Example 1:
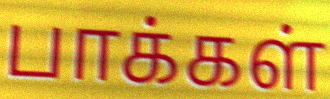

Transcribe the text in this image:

பாக்கள்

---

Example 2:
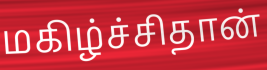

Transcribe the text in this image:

மகிழ்ச்சிதான்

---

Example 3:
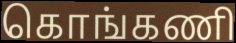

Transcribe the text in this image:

கொங்கணி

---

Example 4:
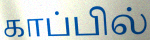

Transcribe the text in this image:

காப்பில்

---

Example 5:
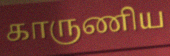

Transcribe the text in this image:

காருணிய